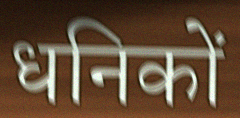
धनिकों